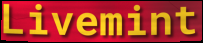
Livemint